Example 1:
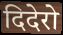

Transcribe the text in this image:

दिदेरो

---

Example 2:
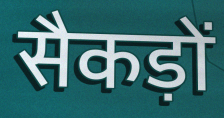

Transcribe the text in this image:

सैकड़ों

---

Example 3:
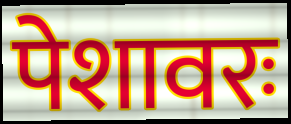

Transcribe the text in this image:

पेशावरः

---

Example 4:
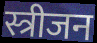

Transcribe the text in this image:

स्त्रीजन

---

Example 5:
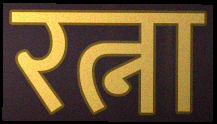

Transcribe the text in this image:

रत्ना